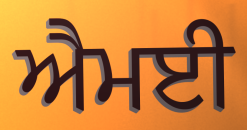
ਐਮਈ